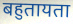
बहुतायता